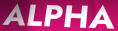
ALPHA